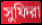
সুফিরা